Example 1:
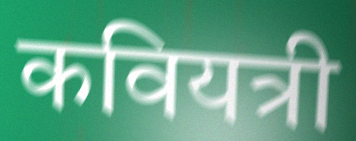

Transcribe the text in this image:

कवियत्री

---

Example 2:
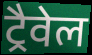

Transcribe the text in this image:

ट्रैवेल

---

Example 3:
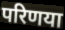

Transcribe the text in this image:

परिणया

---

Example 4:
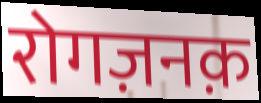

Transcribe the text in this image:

रोगज़नक़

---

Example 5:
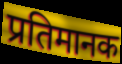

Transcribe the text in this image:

प्रतिमानक